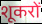
शूकरों